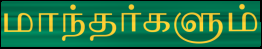
மாந்தர்களும்